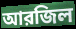
আরজিল